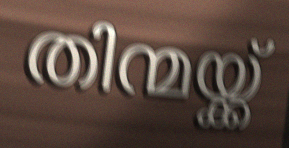
തിന്മയ്ക്ക്